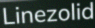
Linezolid